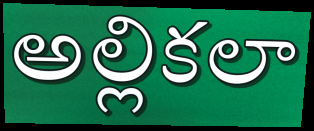
అల్లికలా